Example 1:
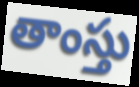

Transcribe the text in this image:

తాంస్తు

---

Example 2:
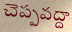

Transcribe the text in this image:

చెప్పవద్దా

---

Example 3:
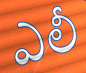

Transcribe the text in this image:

ఎలీ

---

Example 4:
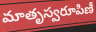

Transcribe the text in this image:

మాతృస్వరూపిణీ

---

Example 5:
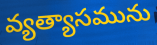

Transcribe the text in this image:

వ్యత్యాసమును